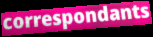
correspondants